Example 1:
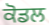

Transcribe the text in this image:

ਕੋਡਲ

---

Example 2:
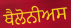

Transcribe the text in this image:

ਥੈਲੋਨੀਅਸ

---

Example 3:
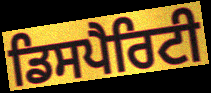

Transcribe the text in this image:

ਡਿਸਪੈਰਿਟੀ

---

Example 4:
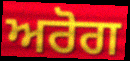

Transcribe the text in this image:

ਅਰੋਗ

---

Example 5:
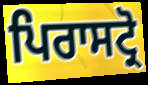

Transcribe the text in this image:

ਪਿਰਾਸਟ੍ਰੋ